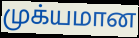
முக்யமான